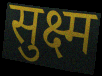
सुक्ष्म